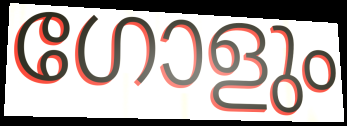
ഗോളും